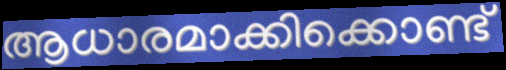
ആധാരമാക്കിക്കൊണ്ട്